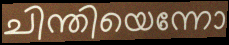
ചിന്തിയെന്നോ